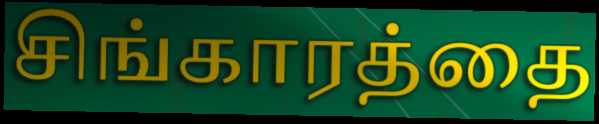
சிங்காரத்தை